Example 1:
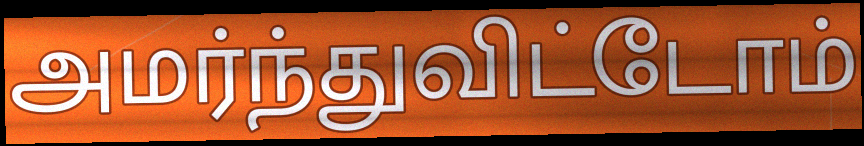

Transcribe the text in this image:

அமர்ந்துவிட்டோம்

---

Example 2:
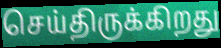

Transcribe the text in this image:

செய்திருக்கிறது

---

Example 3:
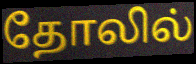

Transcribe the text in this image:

தோலில்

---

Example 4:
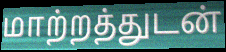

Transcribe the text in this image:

மாற்றத்துடன்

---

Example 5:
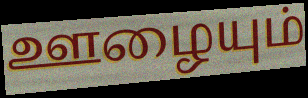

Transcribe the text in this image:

ஊழையும்